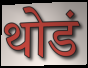
थोडं